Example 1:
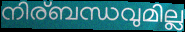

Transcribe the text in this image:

നിര്ബന്ധവുമില്ല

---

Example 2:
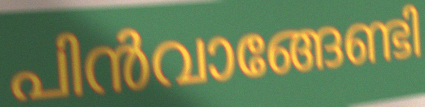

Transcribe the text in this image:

പിൻവാങ്ങേണ്ടി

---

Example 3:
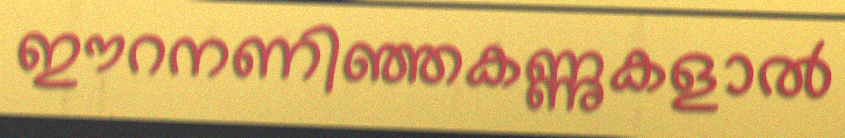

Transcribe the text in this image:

ഈറനണിഞ്ഞകണ്ണുകളാൽ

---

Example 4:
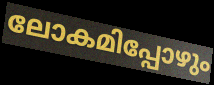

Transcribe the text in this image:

ലോകമിപ്പോഴും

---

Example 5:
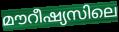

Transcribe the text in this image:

മൗറീഷ്യസിലെ